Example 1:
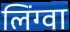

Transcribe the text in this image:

लिंग्वा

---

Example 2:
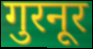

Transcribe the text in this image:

गुरनूर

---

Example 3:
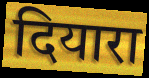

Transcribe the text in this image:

दियारा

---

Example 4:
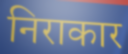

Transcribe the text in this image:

निराकार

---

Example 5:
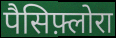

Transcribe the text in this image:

पैसिफ़्लोरा